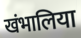
खंभालिया